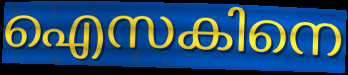
ഐസകിനെ